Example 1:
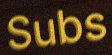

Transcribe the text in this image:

Subs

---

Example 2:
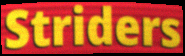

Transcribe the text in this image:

Striders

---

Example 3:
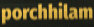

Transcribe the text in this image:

porchhilam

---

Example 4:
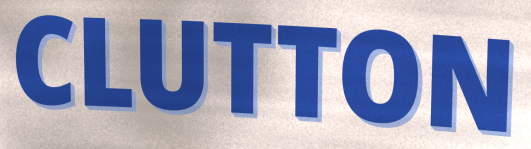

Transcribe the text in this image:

CLUTTON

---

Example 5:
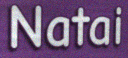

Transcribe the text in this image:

Natai